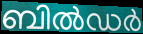
ബിൽഡർ